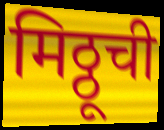
मिठ्ठूची